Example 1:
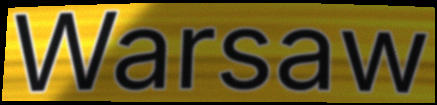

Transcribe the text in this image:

Warsaw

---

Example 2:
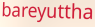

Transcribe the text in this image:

bareyuttha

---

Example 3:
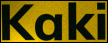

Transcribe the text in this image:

Kaki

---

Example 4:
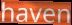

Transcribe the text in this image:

haven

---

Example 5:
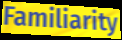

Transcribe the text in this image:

Familiarity